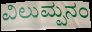
ವಿಲುಮ್ಪನಂ